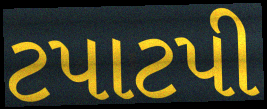
ટપાટપી